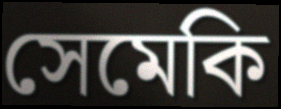
সেমেকি